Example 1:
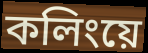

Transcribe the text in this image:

কলিংয়ে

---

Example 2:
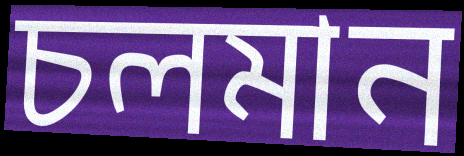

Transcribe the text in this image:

চলমান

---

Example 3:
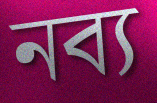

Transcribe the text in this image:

নব্য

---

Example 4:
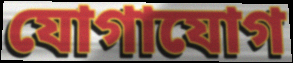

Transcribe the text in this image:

যোগাযোগ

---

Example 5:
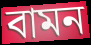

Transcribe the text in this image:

বামন